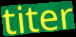
titer